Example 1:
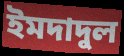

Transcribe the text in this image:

ইমদাদুল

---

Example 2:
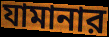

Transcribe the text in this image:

যামানার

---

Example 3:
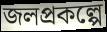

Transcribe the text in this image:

জলপ্রকল্পে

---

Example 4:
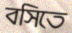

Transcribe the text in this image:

বসিতে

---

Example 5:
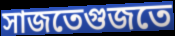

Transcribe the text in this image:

সাজতেগুজতে